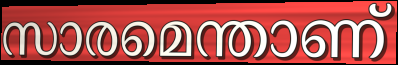
സാരമെന്താണ്